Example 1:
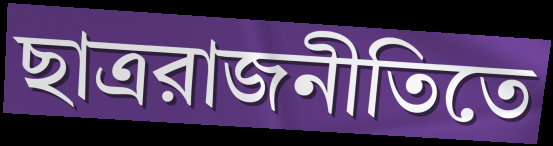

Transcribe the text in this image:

ছাত্ররাজনীতিতে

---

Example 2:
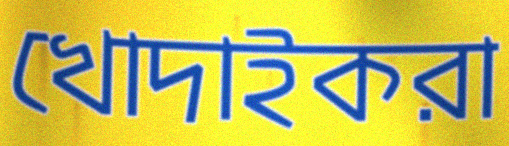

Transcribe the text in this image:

খোদাইকরা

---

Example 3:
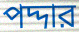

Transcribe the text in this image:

পদ্দার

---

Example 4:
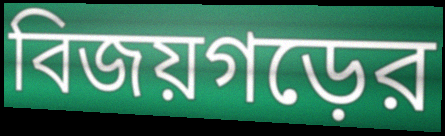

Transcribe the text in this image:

বিজয়গড়ের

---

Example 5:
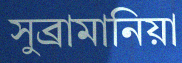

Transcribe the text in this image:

সুব্রামানিয়া